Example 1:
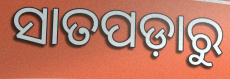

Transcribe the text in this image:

ସାତପଡ଼ାରୁ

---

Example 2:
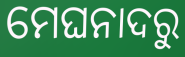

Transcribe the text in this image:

ମେଘନାଦରୁ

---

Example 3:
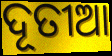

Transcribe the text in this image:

ଦୂତୀଆ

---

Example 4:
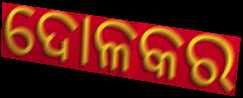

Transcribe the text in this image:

ଦୋଳକର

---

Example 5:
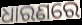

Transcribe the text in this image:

ଧାରଣରେ